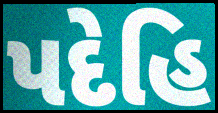
પદેહિ